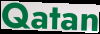
Qatan